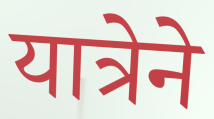
यात्रेने